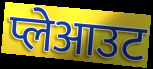
प्लेआउट